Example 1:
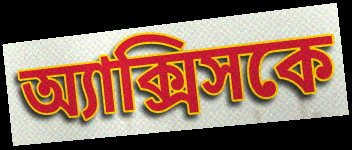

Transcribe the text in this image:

অ্যাক্সিসকে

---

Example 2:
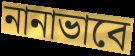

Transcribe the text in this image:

নানাভাবে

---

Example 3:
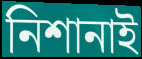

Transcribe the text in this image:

নিশানাই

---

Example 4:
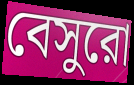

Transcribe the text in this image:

বেসুরো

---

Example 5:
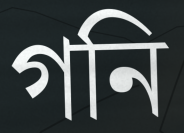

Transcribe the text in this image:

গনি